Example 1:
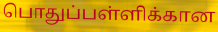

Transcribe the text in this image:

பொதுப்பள்ளிக்கான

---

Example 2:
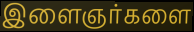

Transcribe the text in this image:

இளைஞர்களை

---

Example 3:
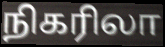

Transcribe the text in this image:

நிகரிலா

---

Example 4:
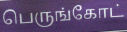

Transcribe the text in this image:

பெருங்கோட்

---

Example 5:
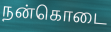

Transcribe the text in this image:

நன்கொடை